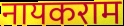
नायकराम